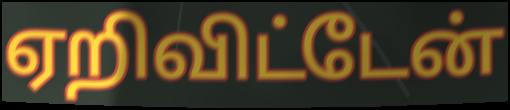
ஏறிவிட்டேன்